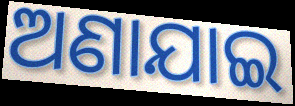
ଅଣାଯାଇ